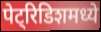
पेट्रिडिशमध्ये